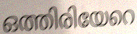
ഒത്തിരിയേറെ